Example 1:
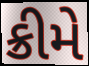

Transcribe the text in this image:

ક્રીમે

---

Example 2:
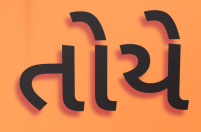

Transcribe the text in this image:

તોયે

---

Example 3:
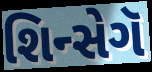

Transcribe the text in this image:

શિન્સેગૅ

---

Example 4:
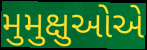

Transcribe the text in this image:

મુમુક્ષુઓએ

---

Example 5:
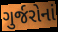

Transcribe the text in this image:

ગુર્જરોનાં